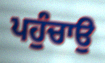
ਪਹੁੰਚਾਉ